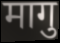
मागु